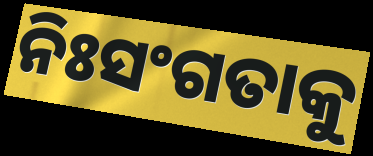
ନିଃସଂଗତାକୁ